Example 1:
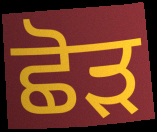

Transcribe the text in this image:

ਛੋੜ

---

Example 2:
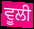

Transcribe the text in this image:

ਵੂਲੀ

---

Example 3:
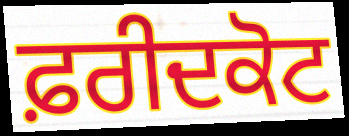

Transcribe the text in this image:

ਫ਼ਰੀਦਕੋਟ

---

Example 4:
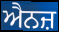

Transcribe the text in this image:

ਐਨਜ਼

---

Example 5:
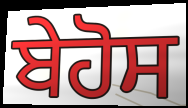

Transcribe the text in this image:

ਬੇਹੋਸ